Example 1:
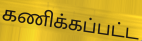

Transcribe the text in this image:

கணிக்கப்பட்ட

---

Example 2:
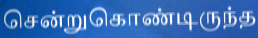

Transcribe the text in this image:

சென்றுகொண்டிருந்த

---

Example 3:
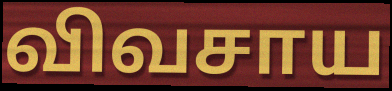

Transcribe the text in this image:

விவசாய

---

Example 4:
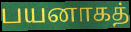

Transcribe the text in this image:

பயனாகத்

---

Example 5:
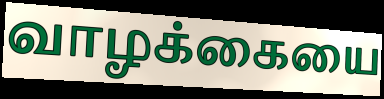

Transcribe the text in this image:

வாழக்கையை